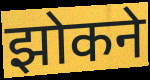
झोकने